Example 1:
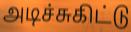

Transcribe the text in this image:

அடிச்சுகிட்டு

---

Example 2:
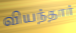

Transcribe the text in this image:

வியந்தார்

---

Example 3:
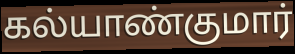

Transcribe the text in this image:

கல்யாண்குமார்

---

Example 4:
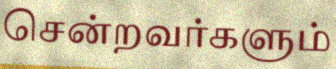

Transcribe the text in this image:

சென்றவர்களும்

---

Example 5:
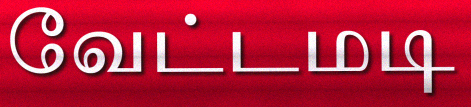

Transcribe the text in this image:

வேட்டமடி